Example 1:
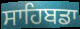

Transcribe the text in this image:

ਸਾਹਿਬਡਾ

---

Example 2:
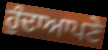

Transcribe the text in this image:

ਹੁੰਦਾਆਪਣੇ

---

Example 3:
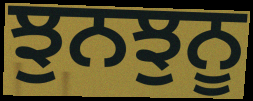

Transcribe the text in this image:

ਝੁਨਝੁਨੂ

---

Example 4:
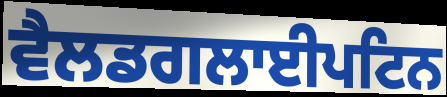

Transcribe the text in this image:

ਵੈਲਡਗਲਾਈਪਟਿਨ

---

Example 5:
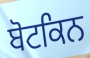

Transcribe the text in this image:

ਬੋਟਕਿਨ